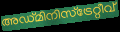
അഡ്മിനിസ്ട്രേറ്റീവ്